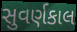
સુવર્ણકાલ